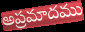
అప్రమాదము